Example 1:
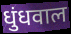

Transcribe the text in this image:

धुंधवाल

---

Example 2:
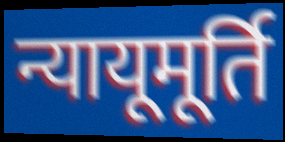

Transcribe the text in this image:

न्यायूमूर्ति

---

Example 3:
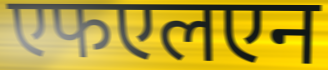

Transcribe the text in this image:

एफएलएन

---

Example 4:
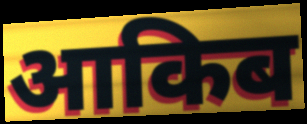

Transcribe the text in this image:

आकिब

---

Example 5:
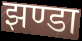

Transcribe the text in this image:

झण्डा